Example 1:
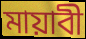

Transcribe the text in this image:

মায়াবী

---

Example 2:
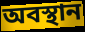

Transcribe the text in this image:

অবস্থান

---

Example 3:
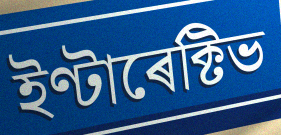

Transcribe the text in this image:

ইণ্টাৰেক্টিভ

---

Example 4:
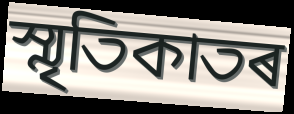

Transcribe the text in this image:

স্মৃতিকাতৰ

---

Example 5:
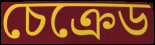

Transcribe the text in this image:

চেক্ৰেড